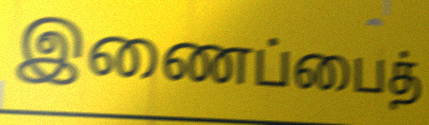
இணைப்பைத்